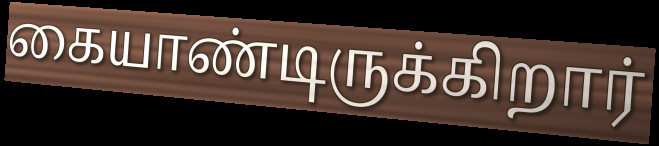
கையாண்டிருக்கிறார்